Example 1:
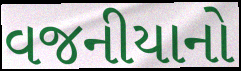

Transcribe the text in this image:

વજનીયાનો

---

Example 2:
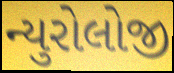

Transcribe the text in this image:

ન્યુરોલોજી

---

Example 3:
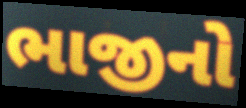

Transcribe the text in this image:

ભાજીનો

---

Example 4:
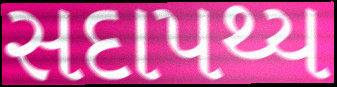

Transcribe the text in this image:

સદાપથ્ય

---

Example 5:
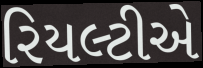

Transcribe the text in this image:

રિયલ્ટીએ